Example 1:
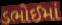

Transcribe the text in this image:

ડભોઈમાં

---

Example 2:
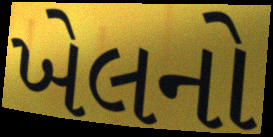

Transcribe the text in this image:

ખેલનો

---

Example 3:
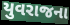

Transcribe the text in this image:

યુવરાજના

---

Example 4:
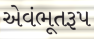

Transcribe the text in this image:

એવંભૂતરૂપ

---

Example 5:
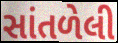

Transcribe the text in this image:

સાંતળેલી